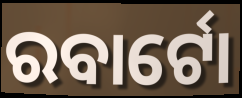
ରବାର୍ଟୋ